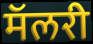
मॅलरी